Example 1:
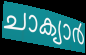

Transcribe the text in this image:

ചാക്യാർ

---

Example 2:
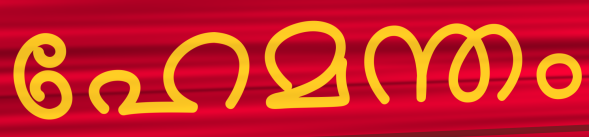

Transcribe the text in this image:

ഹേമന്തം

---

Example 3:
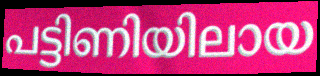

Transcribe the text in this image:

പട്ടിണിയിലായ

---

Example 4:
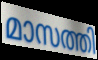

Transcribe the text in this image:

മാസത്തി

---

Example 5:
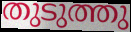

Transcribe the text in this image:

തുടുത്തു